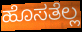
ಹೊಸತೆಲ್ಲ